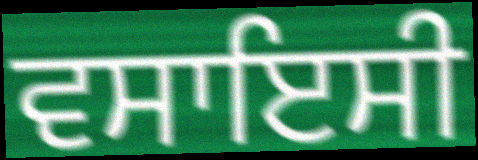
ਵਸਾਇਸੀ